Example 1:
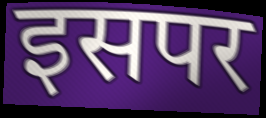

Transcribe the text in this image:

इसपर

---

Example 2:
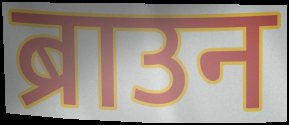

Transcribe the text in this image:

ब्राउन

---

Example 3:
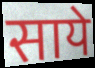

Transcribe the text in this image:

साये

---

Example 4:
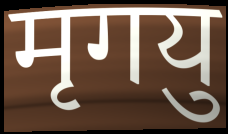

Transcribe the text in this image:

मृगयु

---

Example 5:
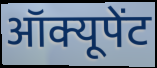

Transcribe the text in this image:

ऑक्यूपेंट